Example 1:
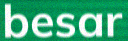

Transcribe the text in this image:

besar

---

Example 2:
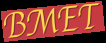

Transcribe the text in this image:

BMET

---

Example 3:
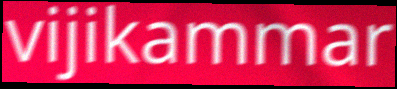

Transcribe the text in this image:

vijikammar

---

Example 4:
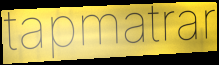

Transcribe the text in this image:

tapmatrar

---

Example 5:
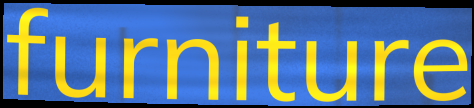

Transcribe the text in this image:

furniture